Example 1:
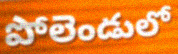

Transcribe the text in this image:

పోలెండులో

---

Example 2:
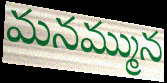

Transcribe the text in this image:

మనమ్మున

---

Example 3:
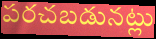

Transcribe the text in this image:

పరచబడునట్లు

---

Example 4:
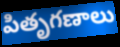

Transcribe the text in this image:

పితృగణాలు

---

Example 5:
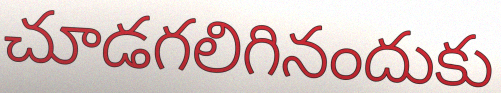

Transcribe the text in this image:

చూడగలిగినందుకు